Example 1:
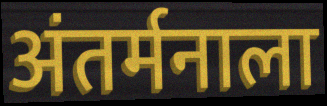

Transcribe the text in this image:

अंतर्मनाला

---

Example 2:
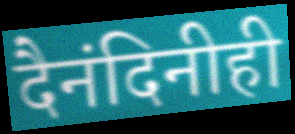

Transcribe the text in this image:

दैनंदिनीही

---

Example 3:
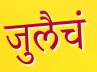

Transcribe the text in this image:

जुलैचं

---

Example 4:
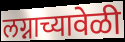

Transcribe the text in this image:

लग्नाच्यावेळी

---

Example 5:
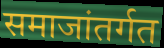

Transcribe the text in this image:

समाजांतर्गत